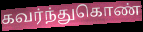
கவர்ந்துகொண்